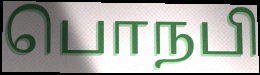
பொநபி